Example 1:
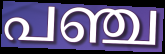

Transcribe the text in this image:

പഞ്ച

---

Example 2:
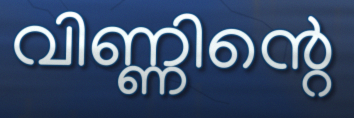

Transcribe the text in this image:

വിണ്ണിന്റെ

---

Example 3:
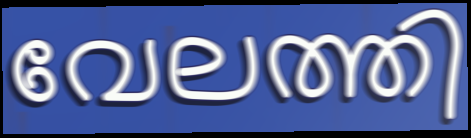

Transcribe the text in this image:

വേലത്തി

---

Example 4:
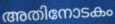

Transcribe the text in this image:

അതിനോടകം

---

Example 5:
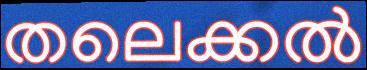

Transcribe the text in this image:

തലെക്കൽ